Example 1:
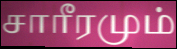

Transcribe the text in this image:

சாரீரமும்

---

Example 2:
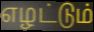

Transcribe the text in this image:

எழட்டும்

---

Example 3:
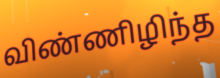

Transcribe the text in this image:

விண்ணிழிந்த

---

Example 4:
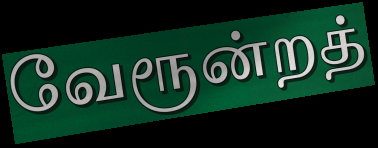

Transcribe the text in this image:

வேரூன்றத்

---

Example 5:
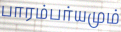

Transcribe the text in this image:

பாரம்பர்யமும்